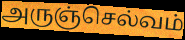
அருஞ்செல்வம்